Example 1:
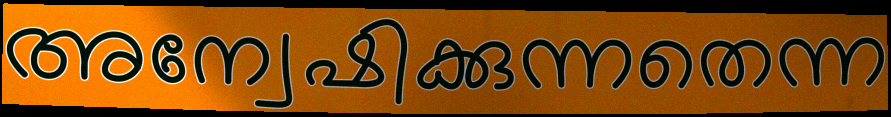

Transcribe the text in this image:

അന്വേഷിക്കുന്നതെന്ന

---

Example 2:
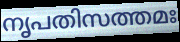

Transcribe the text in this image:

നൃപതിസത്തമഃ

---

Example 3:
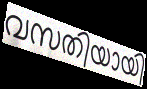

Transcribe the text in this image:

വസതിയായി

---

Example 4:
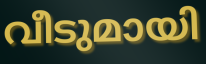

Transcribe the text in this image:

വീടുമായി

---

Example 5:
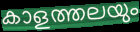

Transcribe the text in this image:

കാളത്തലയും